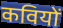
कवियों